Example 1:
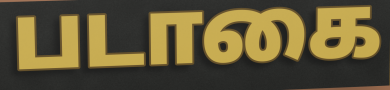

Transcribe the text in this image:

படாகை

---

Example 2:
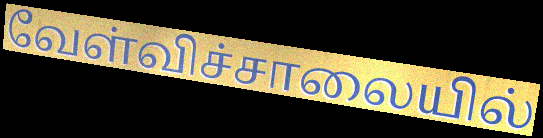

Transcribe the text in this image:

வேள்விச்சாலையில்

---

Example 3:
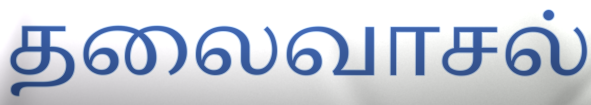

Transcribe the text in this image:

தலைவாசல்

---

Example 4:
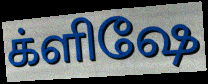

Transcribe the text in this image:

க்ளிஷே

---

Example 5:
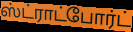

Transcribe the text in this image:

ஸ்ட்ராட்போர்ட்